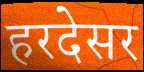
हरदेसर